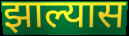
झाल्यास